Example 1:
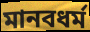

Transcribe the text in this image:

মানবধর্ম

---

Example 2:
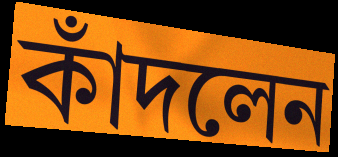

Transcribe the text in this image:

কাঁদলেন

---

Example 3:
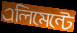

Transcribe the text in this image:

এলিমেন্টে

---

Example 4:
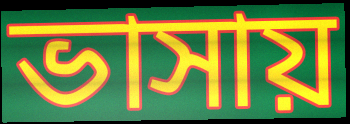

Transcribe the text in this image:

ভাসায়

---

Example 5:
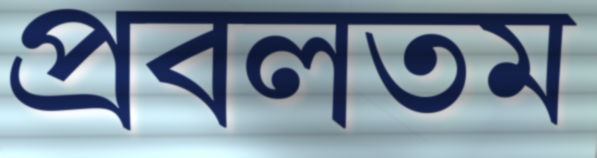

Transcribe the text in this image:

প্রবলতম